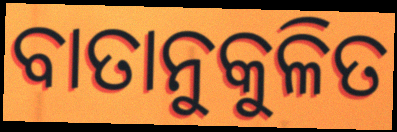
ବାତାନୁକୁଳିତ